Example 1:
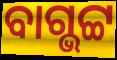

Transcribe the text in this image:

ବାଗ୍ଭଟ୍ଟ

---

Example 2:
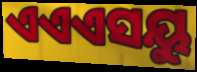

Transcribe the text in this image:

ଏଏଏସୟୁ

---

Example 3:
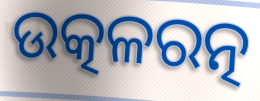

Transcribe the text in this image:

ଉତ୍କଳରତ୍ନ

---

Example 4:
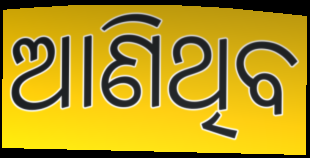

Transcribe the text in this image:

ଆଣିଥିବ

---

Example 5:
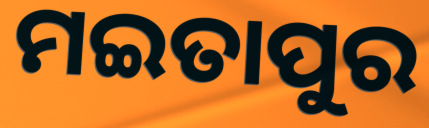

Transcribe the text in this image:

ମଇତାପୁର